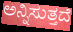
ಅನ್ನಿಸುತ್ತದೆ